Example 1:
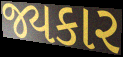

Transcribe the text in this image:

જ્યકાર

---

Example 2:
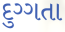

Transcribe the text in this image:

દુગ્ગતા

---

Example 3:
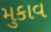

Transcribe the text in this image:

મુકાવ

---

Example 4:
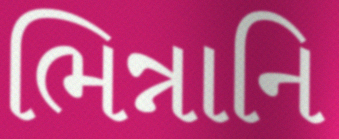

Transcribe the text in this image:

ભિન્નાનિ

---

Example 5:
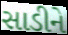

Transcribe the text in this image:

સાડીને